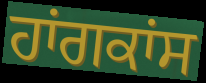
ਹਾਂਗਕਾਂਸ